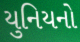
યુનિયનો